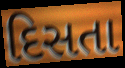
દિસતા